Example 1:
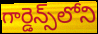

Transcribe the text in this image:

గార్డెన్స్‌లోని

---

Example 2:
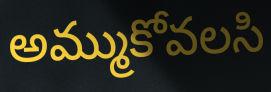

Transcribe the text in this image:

అమ్ముకోవలసి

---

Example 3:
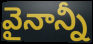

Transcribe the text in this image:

వైనాన్నీ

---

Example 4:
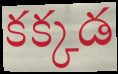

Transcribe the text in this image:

కక్కడ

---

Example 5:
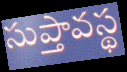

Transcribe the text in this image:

సుప్తావస్థ